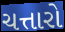
ચત્તારો